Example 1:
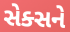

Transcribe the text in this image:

સેક્સને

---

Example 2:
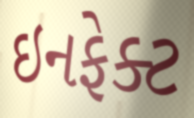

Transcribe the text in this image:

ઇનફેક્ટ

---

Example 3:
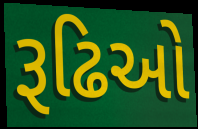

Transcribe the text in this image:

રૂઢિઓ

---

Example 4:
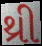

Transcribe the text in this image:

થ્રી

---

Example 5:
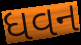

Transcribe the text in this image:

ધવન